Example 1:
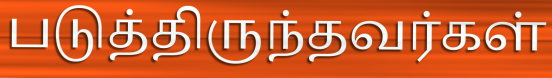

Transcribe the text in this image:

படுத்திருந்தவர்கள்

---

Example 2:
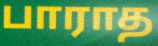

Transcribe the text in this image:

பாராத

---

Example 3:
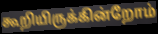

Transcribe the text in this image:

கூறியிருக்கின்றோம்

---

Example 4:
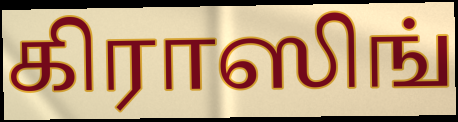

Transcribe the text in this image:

கிராஸிங்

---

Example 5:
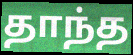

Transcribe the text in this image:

தாந்த